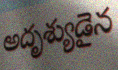
అదృశ్యుడైన